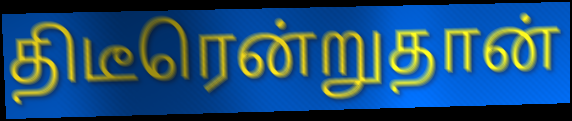
திடீரென்றுதான்